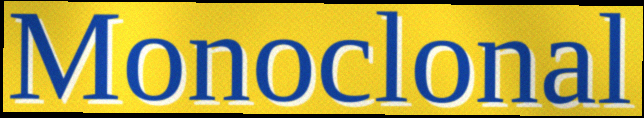
Monoclonal